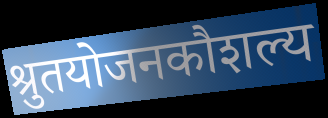
श्रुतयोजनकौशल्य